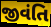
જીવંતિ